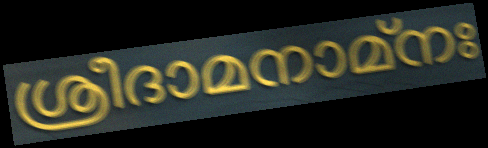
ശ്രീദാമനാമ്നഃ